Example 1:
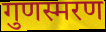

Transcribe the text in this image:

गुणस्मरण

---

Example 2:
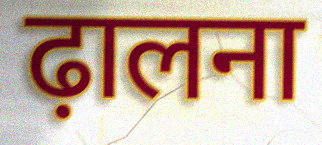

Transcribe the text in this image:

ढ़ालना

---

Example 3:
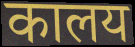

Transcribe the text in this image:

कालय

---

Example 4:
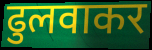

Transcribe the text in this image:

ढुलवाकर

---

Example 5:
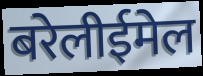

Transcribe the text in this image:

बरेलीईमेल